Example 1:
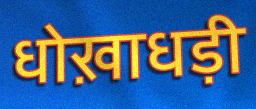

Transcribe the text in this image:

धोख़ाधड़ी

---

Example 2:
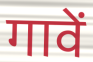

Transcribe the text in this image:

गावें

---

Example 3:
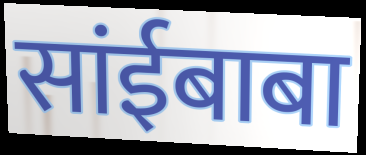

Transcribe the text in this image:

सांईबाबा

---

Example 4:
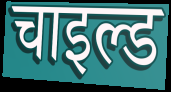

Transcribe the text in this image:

चाइल्ड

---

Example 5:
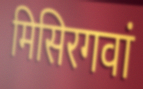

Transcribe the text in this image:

मिसिरगवां